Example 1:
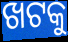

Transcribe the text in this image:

ଖଟକୁ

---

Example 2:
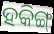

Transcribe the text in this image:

ହକିଙ୍ଗ୍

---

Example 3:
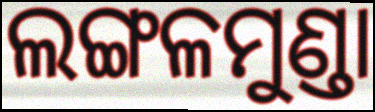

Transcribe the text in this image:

ଲଙ୍ଗଳମୁଣ୍ଡା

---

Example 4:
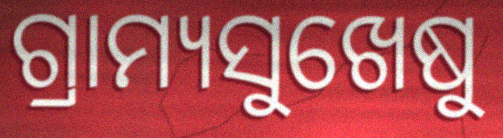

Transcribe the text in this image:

ଗ୍ରାମ୍ୟସୁଖେଷୁ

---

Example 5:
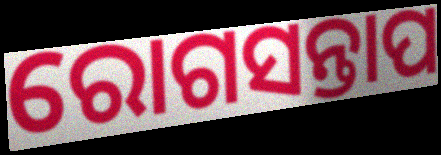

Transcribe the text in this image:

ରୋଗସନ୍ତାପ